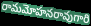
రామమోహనరావుగారి